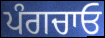
ਪੰਗਚਾਓ